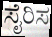
ಸೈರಿಸ